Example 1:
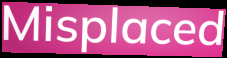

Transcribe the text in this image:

Misplaced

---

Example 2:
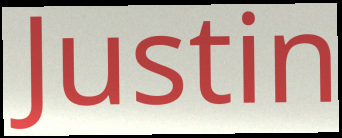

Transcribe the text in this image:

Justin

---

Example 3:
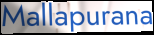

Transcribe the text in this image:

Mallapurana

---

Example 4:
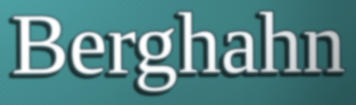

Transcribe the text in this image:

Berghahn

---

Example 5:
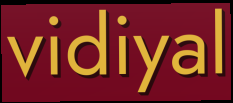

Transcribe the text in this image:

vidiyal